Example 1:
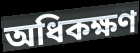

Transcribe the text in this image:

অধিকক্ষণ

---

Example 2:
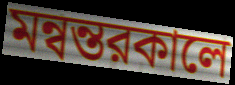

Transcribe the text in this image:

মন্বন্তরকালে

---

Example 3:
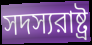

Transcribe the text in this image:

সদস্যরাষ্ট্র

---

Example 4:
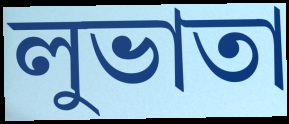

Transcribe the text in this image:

লুভাতা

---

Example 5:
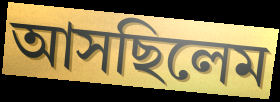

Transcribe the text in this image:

আসছিলেম